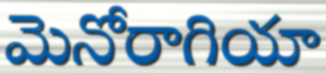
మెనోరాగియా